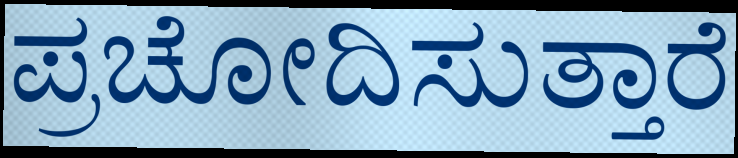
ಪ್ರಚೋದಿಸುತ್ತಾರೆ